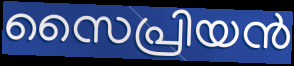
സൈപ്രിയൻ